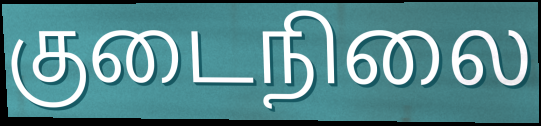
குடைநிலை